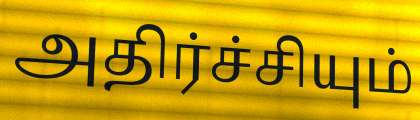
அதிர்ச்சியும்